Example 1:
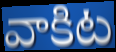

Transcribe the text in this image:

వాకిట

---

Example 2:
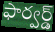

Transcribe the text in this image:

ఫార్వర్డ్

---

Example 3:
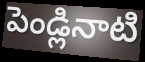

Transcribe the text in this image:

పెండ్లినాటి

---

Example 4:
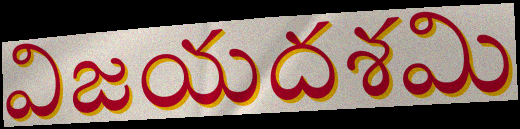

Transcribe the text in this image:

విజయదశమి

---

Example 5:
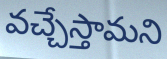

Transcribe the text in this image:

వచ్చేస్తామని